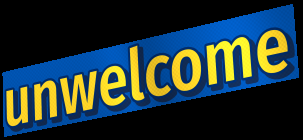
unwelcome